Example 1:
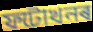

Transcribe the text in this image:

ফটোখনৰ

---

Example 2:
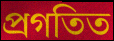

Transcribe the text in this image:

প্ৰগতিত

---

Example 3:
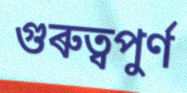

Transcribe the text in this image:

গুৰুত্বপুৰ্ণ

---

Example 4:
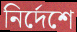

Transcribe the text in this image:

নিৰ্দেশে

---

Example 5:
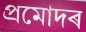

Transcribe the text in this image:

প্ৰমোদৰ